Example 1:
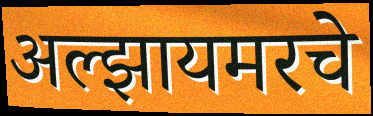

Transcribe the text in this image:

अल्झायमरचे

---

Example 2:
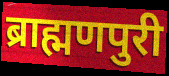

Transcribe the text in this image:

ब्राह्मणपुरी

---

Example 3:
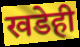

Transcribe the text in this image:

खडेही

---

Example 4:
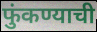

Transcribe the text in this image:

फुंकण्याची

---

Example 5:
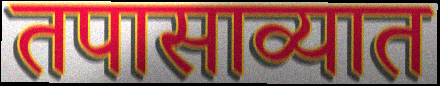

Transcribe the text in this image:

तपासाव्यात